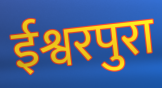
ईश्वरपुरा